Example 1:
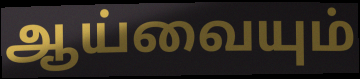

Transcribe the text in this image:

ஆய்வையும்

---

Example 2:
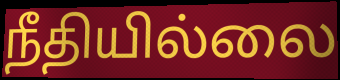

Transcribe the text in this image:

நீதியில்லை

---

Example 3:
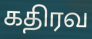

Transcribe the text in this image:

கதிரவ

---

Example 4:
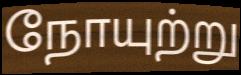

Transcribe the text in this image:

நோயுற்று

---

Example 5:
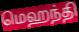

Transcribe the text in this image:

மெஹந்தி